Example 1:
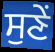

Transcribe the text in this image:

ਸੁਣੇਂ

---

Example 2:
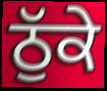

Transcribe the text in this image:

ਠੁੱਕੇ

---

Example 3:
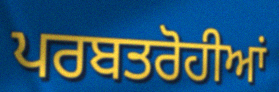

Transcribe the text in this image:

ਪਰਬਤਰੋਹੀਆਂ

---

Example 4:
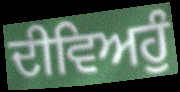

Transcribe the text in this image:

ਦੀਵਿਅਹੁੰ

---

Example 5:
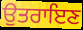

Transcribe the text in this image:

ਉਤਰਾਇਣ